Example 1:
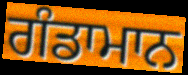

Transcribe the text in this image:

ਗੰਡਾਮਾਨ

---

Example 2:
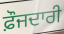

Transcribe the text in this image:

ਫ਼ੌਜਦਾਰੀ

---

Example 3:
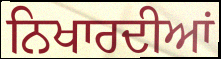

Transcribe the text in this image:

ਨਿਖਾਰਦੀਆਂ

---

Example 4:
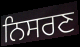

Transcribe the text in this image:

ਨਿਸਰਣ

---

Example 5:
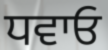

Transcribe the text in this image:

ਧਵਾਓ